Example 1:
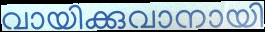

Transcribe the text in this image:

വായിക്കുവാനായി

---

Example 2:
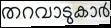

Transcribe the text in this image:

തറവാടുകാർ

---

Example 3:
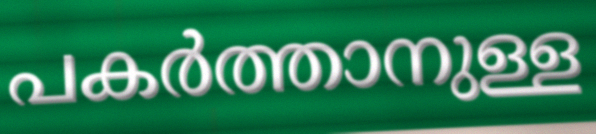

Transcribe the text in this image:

പകർത്താനുള്ള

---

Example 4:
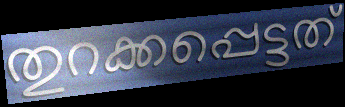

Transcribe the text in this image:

തുറക്കപ്പെട്ടത്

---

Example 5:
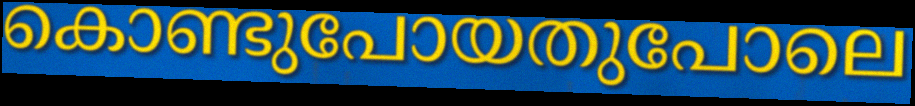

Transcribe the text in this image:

കൊണ്ടുപോയതുപോലെ